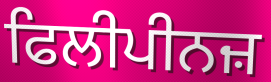
ਫਿਲੀਪੀਨਜ਼